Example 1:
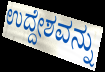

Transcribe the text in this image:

ಉದ್ದೇಶವನ್ನು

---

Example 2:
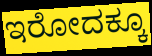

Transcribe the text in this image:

ಇರೋದಕ್ಕೂ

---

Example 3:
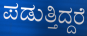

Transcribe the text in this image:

ಪಡುತ್ತಿದ್ದರೆ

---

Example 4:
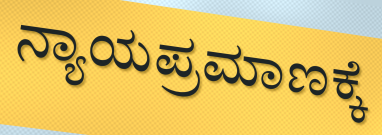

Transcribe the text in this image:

ನ್ಯಾಯಪ್ರಮಾಣಕ್ಕೆ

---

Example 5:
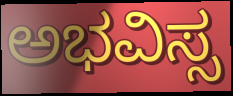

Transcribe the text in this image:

ಅಭವಿಸ್ಸ